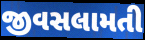
જીવસલામતી